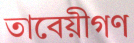
তাবেয়ীগণ